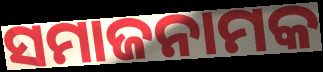
ସମାଜନାମକ